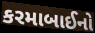
કરમાબાઈનો